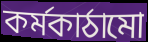
কর্মকাঠামো